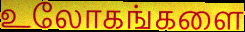
உலோகங்களை